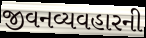
જીવનવ્યવહારની